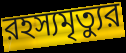
রহস্যমৃত্যুর